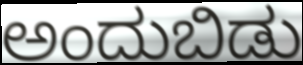
ಅಂದುಬಿಡು